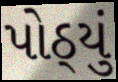
પોઠ્યું